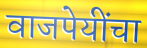
वाजपेयींचा